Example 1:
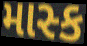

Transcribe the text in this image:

માસ્ક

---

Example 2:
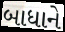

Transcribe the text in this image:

બાધાને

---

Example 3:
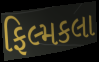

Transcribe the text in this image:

ફિલ્મકલા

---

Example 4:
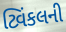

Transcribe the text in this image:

ટ્વિંકલની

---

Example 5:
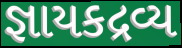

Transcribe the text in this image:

જ્ઞાયકદ્રવ્ય